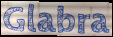
Glabra